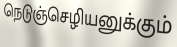
நெடுஞ்செழியனுக்கும்